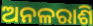
ଅନଳରାଶି